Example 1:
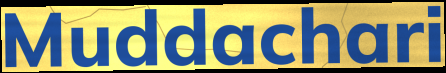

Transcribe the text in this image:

Muddachari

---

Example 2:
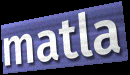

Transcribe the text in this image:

matla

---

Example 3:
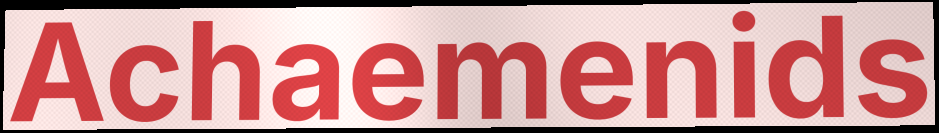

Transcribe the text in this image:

Achaemenids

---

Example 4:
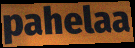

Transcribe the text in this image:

pahelaa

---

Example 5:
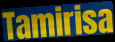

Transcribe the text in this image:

Tamirisa